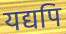
यद्यपि